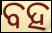
ବହ